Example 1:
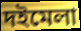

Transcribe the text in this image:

দইমেলা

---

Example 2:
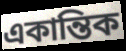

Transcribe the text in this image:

একান্তিক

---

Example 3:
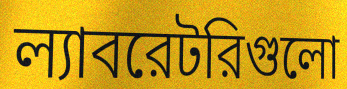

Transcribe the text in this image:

ল্যাবরেটরিগুলো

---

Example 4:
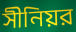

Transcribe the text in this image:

সীনিয়র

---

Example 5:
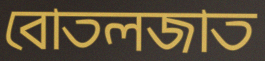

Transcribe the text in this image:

বোতলজাত